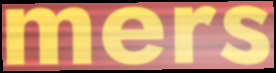
mers